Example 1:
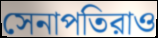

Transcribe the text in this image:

সেনাপতিরাও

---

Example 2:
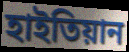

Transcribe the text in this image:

হাইতিয়ান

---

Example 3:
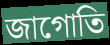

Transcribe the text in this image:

জাগোতি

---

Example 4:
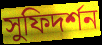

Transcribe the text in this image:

সুফিদর্শন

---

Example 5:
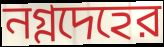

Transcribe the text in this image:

নগ্নদেহের